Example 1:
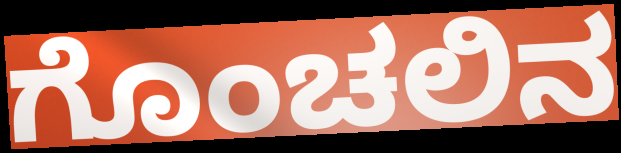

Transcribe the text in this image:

ಗೊಂಚಲಿನ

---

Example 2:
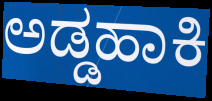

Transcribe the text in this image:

ಅಡ್ಡಹಾಕಿ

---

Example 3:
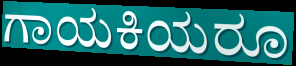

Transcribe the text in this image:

ಗಾಯಕಿಯರೂ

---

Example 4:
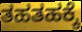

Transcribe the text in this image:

ತಹತಹಕ್ಕೆ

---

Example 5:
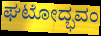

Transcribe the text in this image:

ಘಟೋದ್ಭವಂ